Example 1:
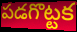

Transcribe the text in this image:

పడగొట్టక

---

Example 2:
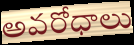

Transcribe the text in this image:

అవరోధాలు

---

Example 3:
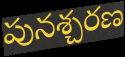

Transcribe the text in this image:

పునశ్చరణ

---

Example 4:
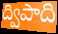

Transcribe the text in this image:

ద్విపాది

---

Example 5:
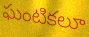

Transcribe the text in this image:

ఘంటికలూ